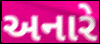
અનારે